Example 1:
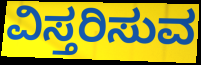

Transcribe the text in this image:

ವಿಸ್ತರಿಸುವ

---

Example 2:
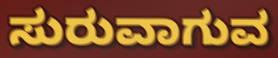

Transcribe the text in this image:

ಸುರುವಾಗುವ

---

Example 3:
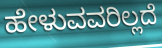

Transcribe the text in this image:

ಹೇಳುವವರಿಲ್ಲದೆ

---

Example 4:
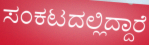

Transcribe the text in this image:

ಸಂಕಟದಲ್ಲಿದ್ದಾರೆ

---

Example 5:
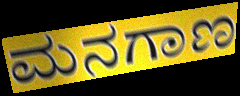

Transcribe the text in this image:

ಮನಗಾಣ